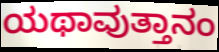
ಯಥಾವುತ್ತಾನಂ